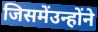
जिसमेंउन्होंने